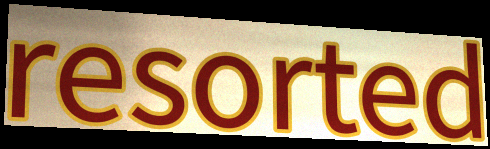
resorted